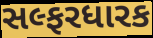
સલ્ફરધારક